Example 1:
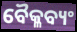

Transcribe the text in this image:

ବୈକ୍ଳବ୍ୟଂ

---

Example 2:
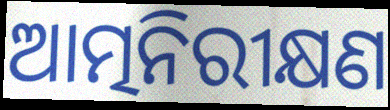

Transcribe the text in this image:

ଆତ୍ମନିରୀକ୍ଷଣ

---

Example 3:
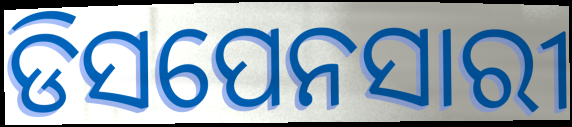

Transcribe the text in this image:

ଡିସପେନସାରୀ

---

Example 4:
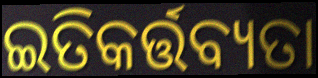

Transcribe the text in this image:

ଇତିକର୍ତ୍ତବ୍ୟତା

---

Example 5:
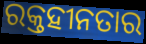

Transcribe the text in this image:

ରକ୍ତହୀନତାର